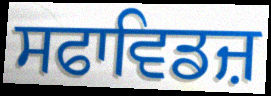
ਸਫਾਵਿਡਜ਼